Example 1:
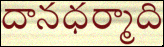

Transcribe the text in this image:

దానధర్మాది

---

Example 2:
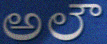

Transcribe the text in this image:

అలౌ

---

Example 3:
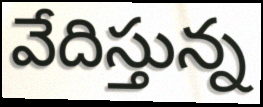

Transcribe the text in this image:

వేదిస్తున్న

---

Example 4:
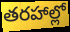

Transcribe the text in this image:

తరహాల్లో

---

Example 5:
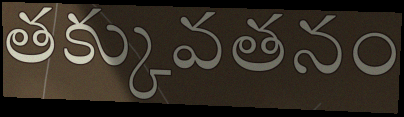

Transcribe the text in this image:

తక్కువతనం